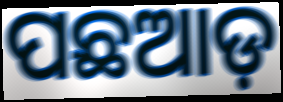
ପଛଆଡ଼